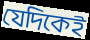
যেদিকেই